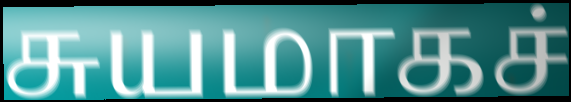
சுயமாகச்